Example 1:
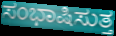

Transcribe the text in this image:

ಸಂಭಾಷಿಸುತ್ತ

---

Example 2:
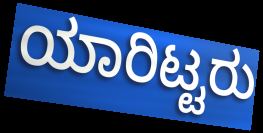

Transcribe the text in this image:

ಯಾರಿಟ್ಟರು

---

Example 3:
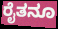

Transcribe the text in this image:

ರೈತನೂ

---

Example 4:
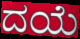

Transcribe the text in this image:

ದಯೆ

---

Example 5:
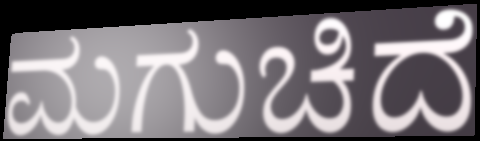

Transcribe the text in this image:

ಮಗುಚಿದೆ